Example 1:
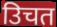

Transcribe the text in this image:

उिचत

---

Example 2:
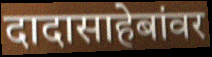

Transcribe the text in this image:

दादासाहेबांवर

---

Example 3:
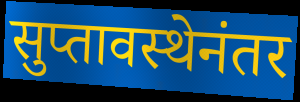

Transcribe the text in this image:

सुप्तावस्थेनंतर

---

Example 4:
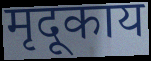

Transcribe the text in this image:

मृदूकाय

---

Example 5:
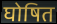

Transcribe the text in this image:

घोषित